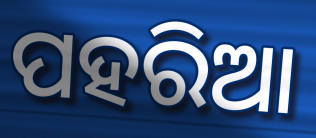
ପହରିଆ